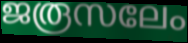
ജരൂസലേം